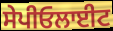
ਸੇਪੀਓਲਾਈਟ